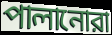
পালানোরা